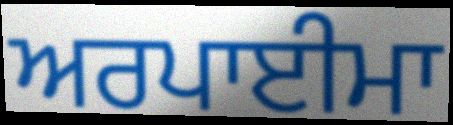
ਅਰਪਾਈਮਾ